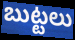
బుట్టలు